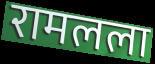
रामलला